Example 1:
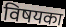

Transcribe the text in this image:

विषयका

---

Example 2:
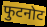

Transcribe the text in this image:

फुटनोट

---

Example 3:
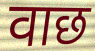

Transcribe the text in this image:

वाछ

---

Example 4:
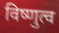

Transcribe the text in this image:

विष्णुत्व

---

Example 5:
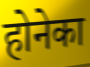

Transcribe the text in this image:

होनेका